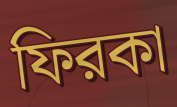
ফিরকা